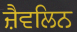
ਜ਼ੈਵਲਿਨ